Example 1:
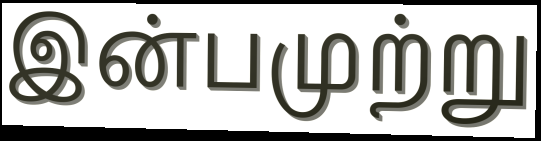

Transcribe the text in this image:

இன்பமுற்று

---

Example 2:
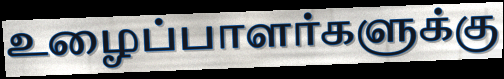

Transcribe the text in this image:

உழைப்பாளர்களுக்கு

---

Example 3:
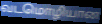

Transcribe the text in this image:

வடமொழியான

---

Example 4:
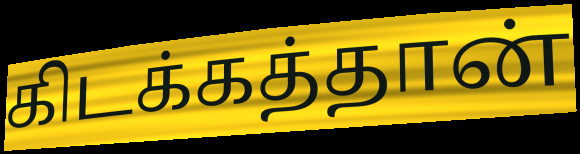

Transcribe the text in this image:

கிடக்கத்தான்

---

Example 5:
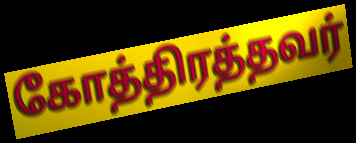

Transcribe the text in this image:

கோத்திரத்தவர்